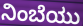
ನಿಂಬೆಯು